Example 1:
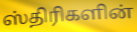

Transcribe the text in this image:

ஸ்திரிகளின்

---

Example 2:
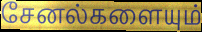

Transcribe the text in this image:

சேனல்களையும்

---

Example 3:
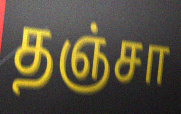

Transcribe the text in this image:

தஞ்சா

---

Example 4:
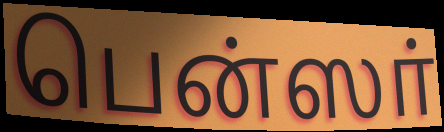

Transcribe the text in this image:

பென்ஸர்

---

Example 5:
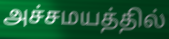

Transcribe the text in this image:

அச்சமயத்தில்